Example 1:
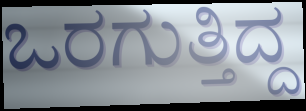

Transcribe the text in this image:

ಒರಗುತ್ತಿದ್ದ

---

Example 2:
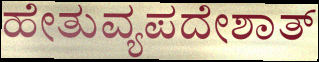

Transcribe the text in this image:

ಹೇತುವ್ಯಪದೇಶಾತ್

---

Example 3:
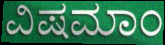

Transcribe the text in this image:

ವಿಷಮಾಂ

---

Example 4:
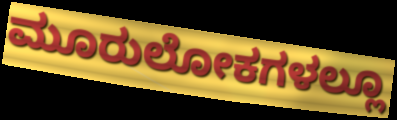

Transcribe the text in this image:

ಮೂರುಲೋಕಗಳಲ್ಲೂ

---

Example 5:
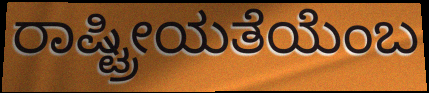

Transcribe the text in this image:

ರಾಷ್ಟ್ರೀಯತೆಯೆಂಬ